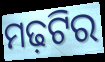
ମଢ଼ଟିର